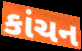
કાંચન